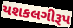
યશકલગીરૂપ